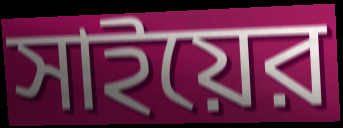
সাইয়ের